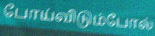
போய்விடும்போல்